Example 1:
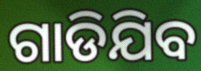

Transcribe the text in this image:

ଗାଡିଯିବ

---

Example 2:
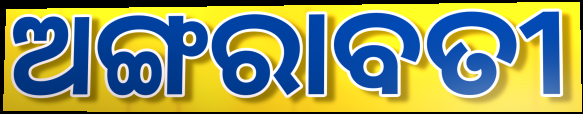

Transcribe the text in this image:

ଅଙ୍ଗରାବତୀ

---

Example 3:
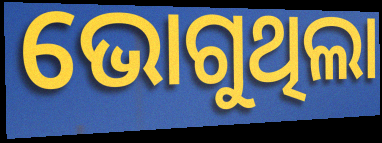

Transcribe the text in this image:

ଭୋଗୁଥିଲା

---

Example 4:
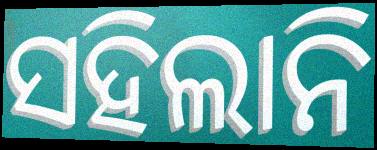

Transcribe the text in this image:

ସହିଲାନି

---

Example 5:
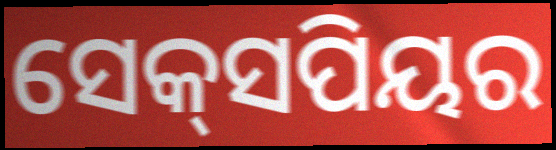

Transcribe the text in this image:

ସେକ୍‌ସପିୟର